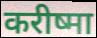
करीष्मा